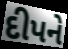
દીપને